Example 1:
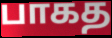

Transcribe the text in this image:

பாகத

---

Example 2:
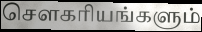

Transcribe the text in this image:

சௌகரியங்களும்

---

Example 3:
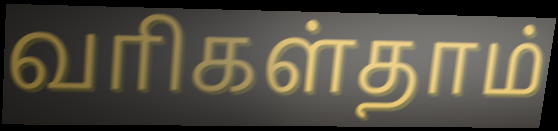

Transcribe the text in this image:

வரிகள்தாம்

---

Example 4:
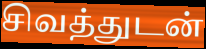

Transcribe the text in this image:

சிவத்துடன்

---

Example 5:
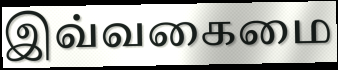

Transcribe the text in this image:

இவ்வகைமை